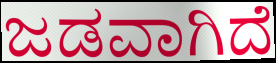
ಜಡವಾಗಿದೆ